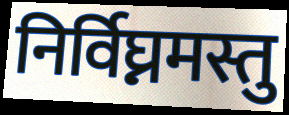
निर्विघ्नमस्तु